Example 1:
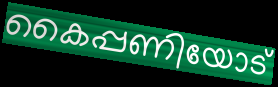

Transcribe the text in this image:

കൈപ്പണിയോട്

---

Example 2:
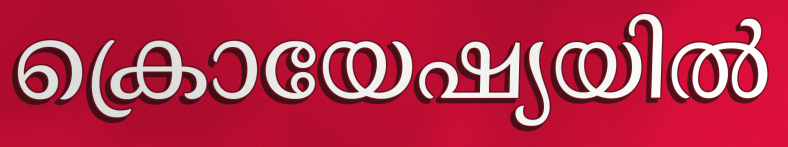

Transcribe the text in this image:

ക്രൊയേഷ്യയിൽ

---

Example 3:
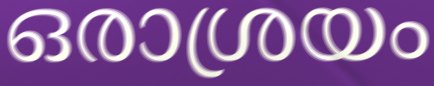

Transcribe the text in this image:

ഒരാശ്രയം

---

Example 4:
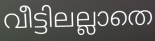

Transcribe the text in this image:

വീട്ടിലല്ലാതെ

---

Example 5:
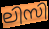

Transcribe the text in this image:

ലിസി